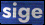
sige